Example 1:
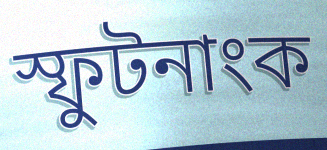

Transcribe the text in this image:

স্ফুটনাংক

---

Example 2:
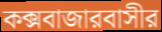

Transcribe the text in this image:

কক্সবাজারবাসীর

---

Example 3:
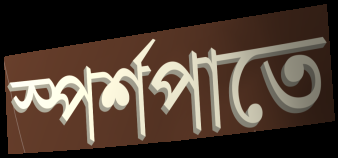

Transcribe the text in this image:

স্পর্শপাতে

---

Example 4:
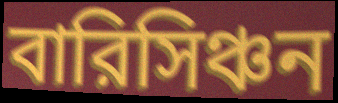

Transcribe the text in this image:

বারিসিঞ্চন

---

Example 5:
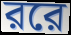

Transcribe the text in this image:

ররে